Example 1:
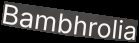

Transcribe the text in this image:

Bambhrolia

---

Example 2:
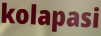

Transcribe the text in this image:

kolapasi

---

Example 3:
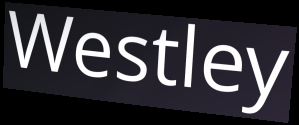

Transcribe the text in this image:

Westley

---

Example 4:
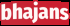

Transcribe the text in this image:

bhajans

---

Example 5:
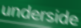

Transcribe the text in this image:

underside